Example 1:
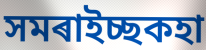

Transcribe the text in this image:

সমৰাইচ্ছকহা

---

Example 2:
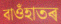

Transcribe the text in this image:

বাওঁহাতৰ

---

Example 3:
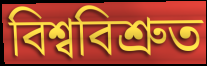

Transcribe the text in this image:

বিশ্ববিশ্ৰুত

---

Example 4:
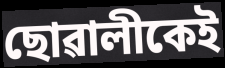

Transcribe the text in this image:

ছোৱালীকেই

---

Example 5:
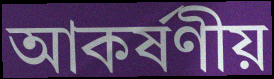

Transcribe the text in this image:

আকৰ্ষণীয়